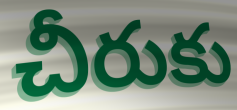
చీరుకు